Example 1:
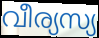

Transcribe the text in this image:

വീര്യസ്യ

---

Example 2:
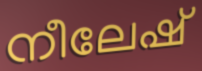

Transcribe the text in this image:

നീലേഷ്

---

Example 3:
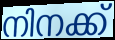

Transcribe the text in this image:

നിനക്ക്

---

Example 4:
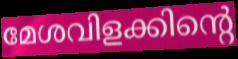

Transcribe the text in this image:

മേശവിളക്കിന്റെ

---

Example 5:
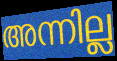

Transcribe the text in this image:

അന്നില്ല